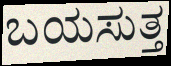
ಬಯಸುತ್ತ